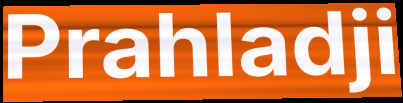
Prahladji